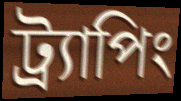
ট্র্যাপিং